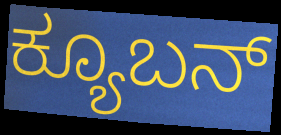
ಕ್ಯೂಬನ್